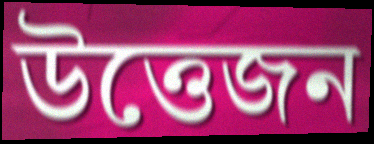
উত্তেজন